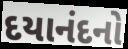
દયાનંદનો